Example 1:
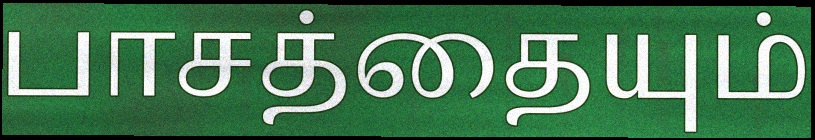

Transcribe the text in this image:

பாசத்தையும்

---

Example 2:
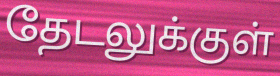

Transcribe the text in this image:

தேடலுக்குள்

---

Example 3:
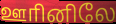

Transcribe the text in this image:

ஊரினிலே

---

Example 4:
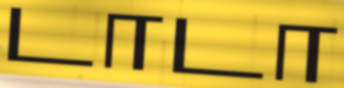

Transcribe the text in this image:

டாடா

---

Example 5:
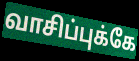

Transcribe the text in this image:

வாசிப்புக்கே